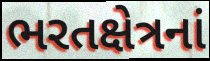
ભરતક્ષેત્રનાં